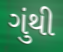
ગુંથી